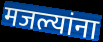
मजल्यांना